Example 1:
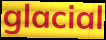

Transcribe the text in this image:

glacial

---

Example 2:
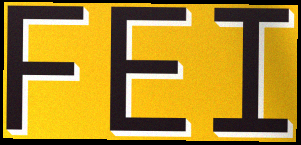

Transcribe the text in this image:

FEI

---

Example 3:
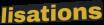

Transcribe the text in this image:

lisations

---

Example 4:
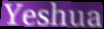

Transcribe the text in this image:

Yeshua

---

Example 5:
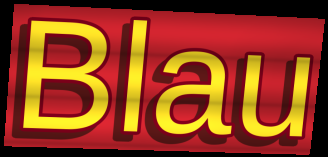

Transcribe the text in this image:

Blau